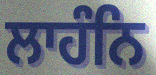
ਲਾਹੰਨਿ